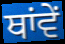
ਥਾਂਵੇਂ